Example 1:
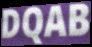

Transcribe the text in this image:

DQAB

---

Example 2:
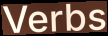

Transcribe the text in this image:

Verbs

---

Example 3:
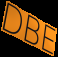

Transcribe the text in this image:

DBE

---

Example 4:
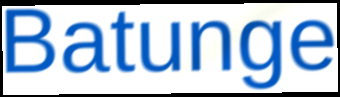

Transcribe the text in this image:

Batunge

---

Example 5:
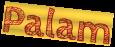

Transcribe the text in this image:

Palam